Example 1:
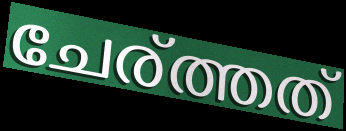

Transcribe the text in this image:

ചേര്ത്തത്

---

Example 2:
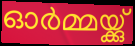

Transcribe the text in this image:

ഓർമ്മയ്ക്കു്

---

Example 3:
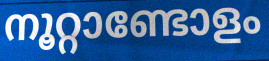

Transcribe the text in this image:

നൂറ്റാണ്ടോളം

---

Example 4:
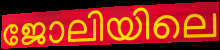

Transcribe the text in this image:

ജോലിയിലെ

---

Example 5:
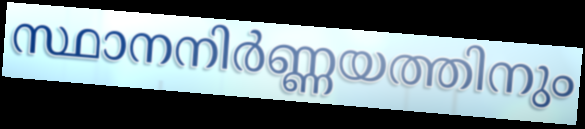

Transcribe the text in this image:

സ്ഥാനനിർണ്ണയത്തിനും